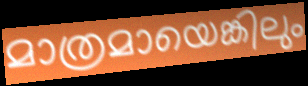
മാത്രമായെങ്കിലും